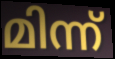
മിന്ന്